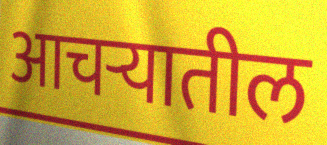
आचऱ्यातील